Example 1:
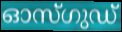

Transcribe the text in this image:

ഓസ്ഗുഡ്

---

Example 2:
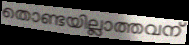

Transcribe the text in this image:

തൊണ്ടയില്ലാത്തവന്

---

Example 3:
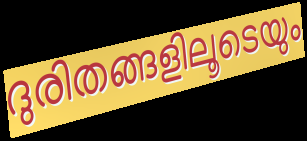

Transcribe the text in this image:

ദുരിതങ്ങളിലൂടെയും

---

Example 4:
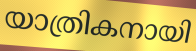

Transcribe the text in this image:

യാത്രികനായി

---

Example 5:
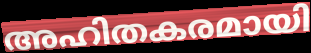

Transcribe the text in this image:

അഹിതകരമായി